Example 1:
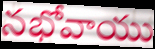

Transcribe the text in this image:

నభోవాయు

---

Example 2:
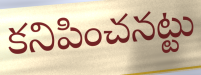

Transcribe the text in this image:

కనిపించనట్టు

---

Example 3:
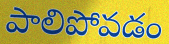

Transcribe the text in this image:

పాలిపోవడం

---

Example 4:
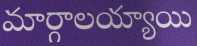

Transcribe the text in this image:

మార్గాలయ్యాయి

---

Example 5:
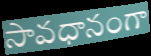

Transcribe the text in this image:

సావధానంగా